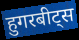
हुगरबीट्स